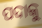
ପଦାକୁ